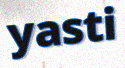
yasti